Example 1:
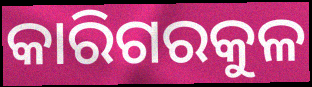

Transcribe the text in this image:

କାରିଗରକୁଳ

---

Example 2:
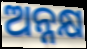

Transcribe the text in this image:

ଅନ୍ନକ୍ଷ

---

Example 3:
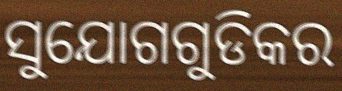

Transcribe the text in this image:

ସୁଯୋଗଗୁଡିକର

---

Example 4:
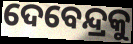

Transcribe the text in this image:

ଦେବେନ୍ଦ୍ରକୁ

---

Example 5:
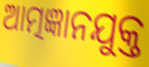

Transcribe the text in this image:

ଆତ୍ମଜ୍ଞାନଯୁକ୍ତ